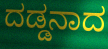
ದಡ್ಡನಾದ